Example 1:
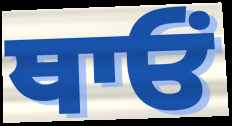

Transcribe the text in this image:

ਥਾਓਂ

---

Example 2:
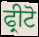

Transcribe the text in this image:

ਫ੍ਰੀਟੋ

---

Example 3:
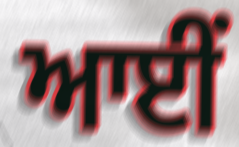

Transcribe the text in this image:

ਆਈਂ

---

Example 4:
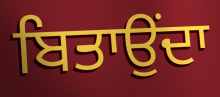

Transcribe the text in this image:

ਬਿਤਾਉਂਦਾ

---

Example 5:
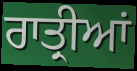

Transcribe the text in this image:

ਰਾਤ੍ਰੀਆਂ